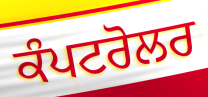
ਕੰਪਟਰੋਲਰ